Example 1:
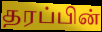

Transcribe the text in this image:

தரப்பின்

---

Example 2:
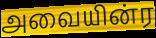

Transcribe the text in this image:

அவையின்ர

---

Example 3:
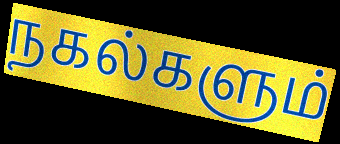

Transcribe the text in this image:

நகல்களும்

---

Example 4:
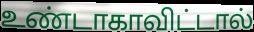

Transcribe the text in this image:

உண்டாகாவிட்டால்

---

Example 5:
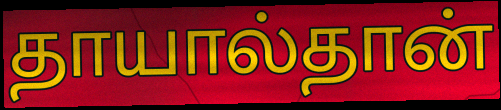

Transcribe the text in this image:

தாயால்தான்